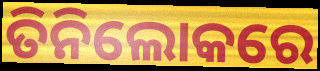
ତିନିଲୋକରେ